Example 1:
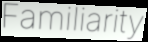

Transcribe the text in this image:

Familiarity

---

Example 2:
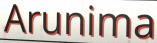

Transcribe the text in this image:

Arunima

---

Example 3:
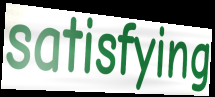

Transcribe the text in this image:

satisfying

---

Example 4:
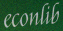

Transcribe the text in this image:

econlib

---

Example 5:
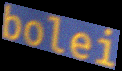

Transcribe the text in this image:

bolei